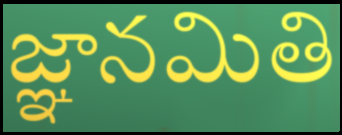
జ్ఞానమితి